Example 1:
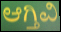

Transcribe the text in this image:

ಆಗ್ತಿವಿ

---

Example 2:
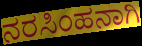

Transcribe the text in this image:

ನರಸಿಂಹನಾಗಿ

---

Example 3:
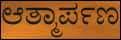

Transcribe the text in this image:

ಆತ್ಮಾರ್ಪಣ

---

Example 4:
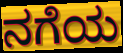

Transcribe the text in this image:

ನಗೆಯ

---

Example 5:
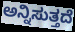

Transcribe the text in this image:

ಅನ್ನಿಸುತ್ತದೆ